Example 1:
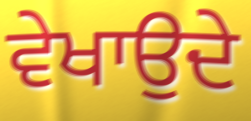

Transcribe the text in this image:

ਵੇਖਾਉਦੇ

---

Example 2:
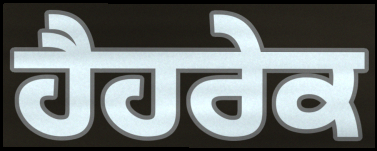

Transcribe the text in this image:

ਹੈਹਰੇਕ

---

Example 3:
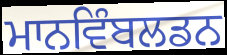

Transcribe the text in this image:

ਮਾਨਵਿੰਬਲਡਨ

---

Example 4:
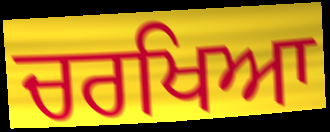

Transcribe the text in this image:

ਚਰਖਿਆ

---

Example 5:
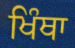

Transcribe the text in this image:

ਖਿੰਥਾ